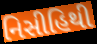
નિસીહિથી